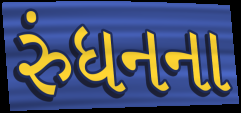
રુંધનના